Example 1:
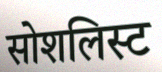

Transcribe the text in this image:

सोशलिस्‍ट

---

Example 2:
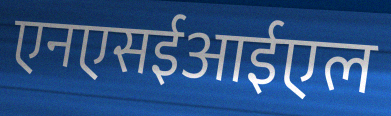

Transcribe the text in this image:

एनएसईआईएल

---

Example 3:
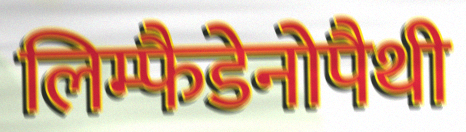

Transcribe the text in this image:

लिम्फैडेनोपैथी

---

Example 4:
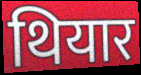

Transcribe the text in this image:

थियार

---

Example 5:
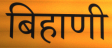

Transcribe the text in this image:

बिहाणी